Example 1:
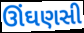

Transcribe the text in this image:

ઊંઘણસી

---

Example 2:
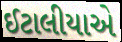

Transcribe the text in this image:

ઈટાલીયાએ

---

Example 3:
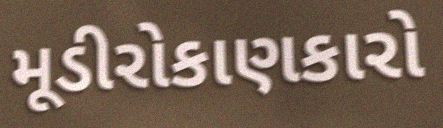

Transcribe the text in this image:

મૂડીરોકાણકારો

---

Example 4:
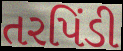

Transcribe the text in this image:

તરપિંડી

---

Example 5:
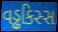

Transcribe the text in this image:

વડ્ઢકિસ્સ